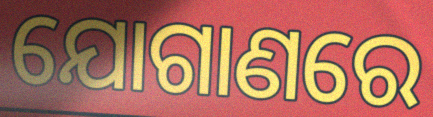
ଯୋଗାଣରେ